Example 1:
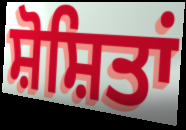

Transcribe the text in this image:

ਸ਼ੋਸ਼ਿਤਾਂ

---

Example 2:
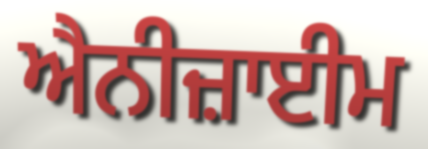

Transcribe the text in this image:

ਐਨੀਜ਼ਾਈਮ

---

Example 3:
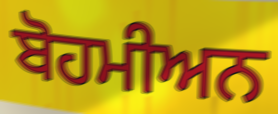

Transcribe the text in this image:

ਬੋਹਮੀਅਨ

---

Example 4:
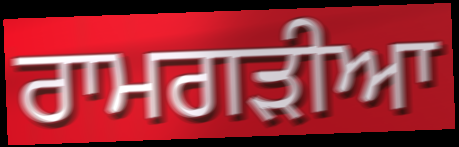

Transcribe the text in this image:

ਰਾਮਗੜੀਆ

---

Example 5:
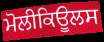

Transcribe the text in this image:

ਮੋਲੀਕਿਊਲਸ